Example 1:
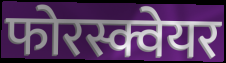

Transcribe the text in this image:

फोरस्क्वेयर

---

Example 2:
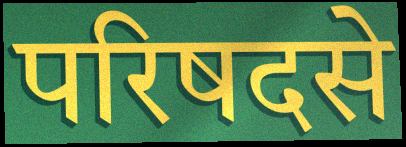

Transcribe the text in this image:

परिषदसे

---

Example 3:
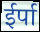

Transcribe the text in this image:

ईर्पा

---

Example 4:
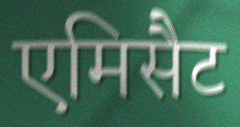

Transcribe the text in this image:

एमिसैट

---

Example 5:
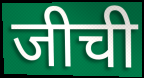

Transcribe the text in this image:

जीची